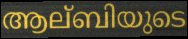
ആല്ബിയുടെ